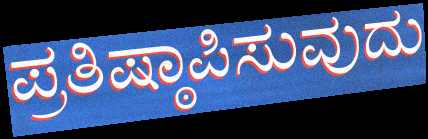
ಪ್ರತಿಷ್ಠಾಪಿಸುವುದು